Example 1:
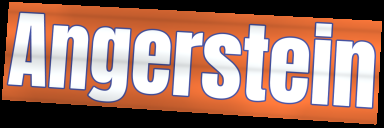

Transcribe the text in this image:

Angerstein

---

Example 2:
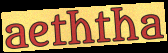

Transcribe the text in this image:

aeththa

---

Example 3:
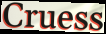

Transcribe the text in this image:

Cruess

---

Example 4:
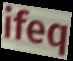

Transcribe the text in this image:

ifeq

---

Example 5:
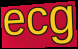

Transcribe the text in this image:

ecg